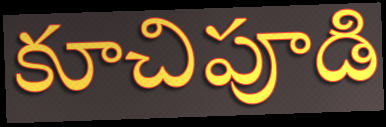
కూచిపూడి